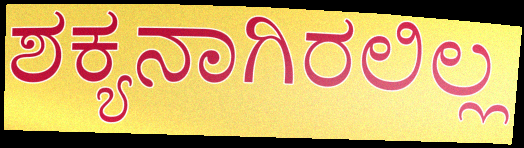
ಶಕ್ಯನಾಗಿರಲಿಲ್ಲ